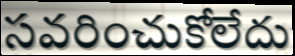
సవరించుకోలేదు